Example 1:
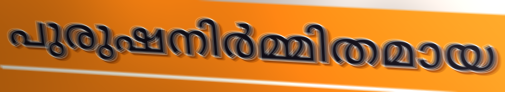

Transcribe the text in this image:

പുരുഷനിർമ്മിതമായ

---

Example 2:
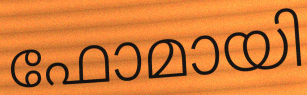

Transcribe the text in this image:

ഫോമായി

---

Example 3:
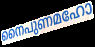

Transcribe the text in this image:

നൈപുണമഹോ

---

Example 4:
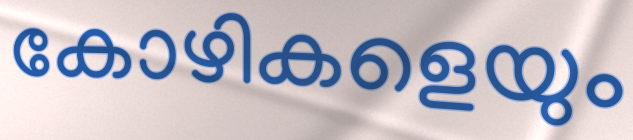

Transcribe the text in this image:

കോഴികളെയും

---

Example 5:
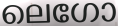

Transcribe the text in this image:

ലെഗോ